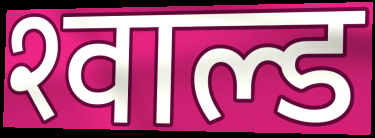
श्वाल्ड